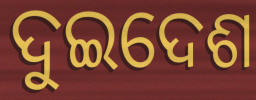
ଦୁଇଦେଶ